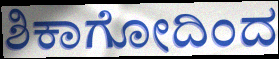
ಶಿಕಾಗೋದಿಂದ